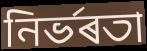
নিৰ্ভৰতা